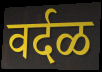
वर्दळ